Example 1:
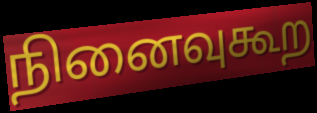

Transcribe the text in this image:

நினைவுகூற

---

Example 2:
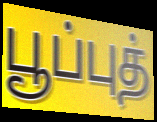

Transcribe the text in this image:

பூப்புத்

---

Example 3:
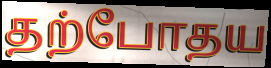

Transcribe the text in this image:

தற்போதய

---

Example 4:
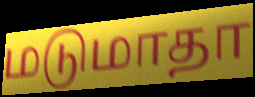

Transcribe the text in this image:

மடுமாதா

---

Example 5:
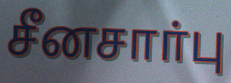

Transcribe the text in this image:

சீனசார்பு